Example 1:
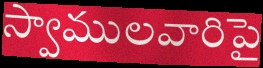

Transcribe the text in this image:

స్వాములవారిపై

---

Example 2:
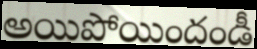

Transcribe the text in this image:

అయిపోయిందండీ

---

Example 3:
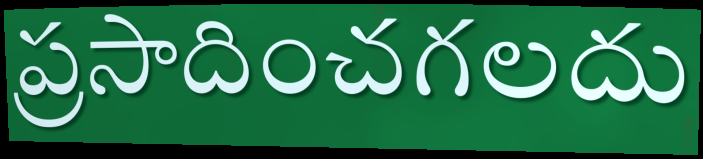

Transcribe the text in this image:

ప్రసాదించగలదు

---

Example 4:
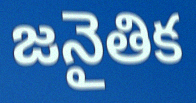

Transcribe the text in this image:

జనైతిక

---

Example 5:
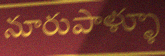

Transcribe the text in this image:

నూరుపాళ్ళూ